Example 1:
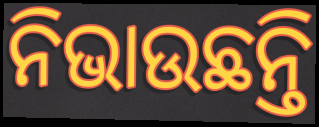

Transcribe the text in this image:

ନିଭାଉଛନ୍ତି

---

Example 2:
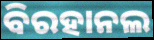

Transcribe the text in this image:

ବିରହାନଲ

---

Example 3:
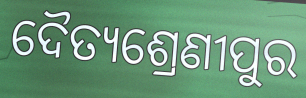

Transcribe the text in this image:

ଦୈତ୍ୟଶ୍ରେଣୀପୁର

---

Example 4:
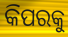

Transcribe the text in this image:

କିପରକୁ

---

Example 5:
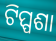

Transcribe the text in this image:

ଟିପ୍ପଶା